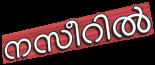
നസീറിൽ